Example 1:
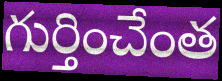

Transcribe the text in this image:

గుర్తించేంత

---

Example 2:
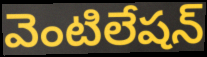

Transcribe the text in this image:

వెంటిలేషన్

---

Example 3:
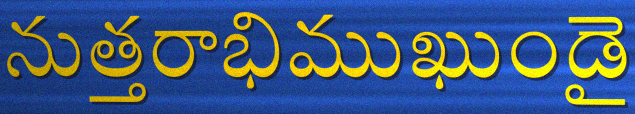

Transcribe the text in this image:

నుత్తరాభిముఖుండై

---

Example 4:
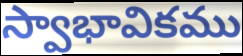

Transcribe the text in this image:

స్వాభావికము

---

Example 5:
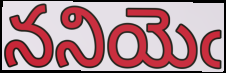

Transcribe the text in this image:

ననియెఁ